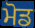
ਮੋਡ